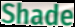
Shade